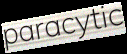
paracytic